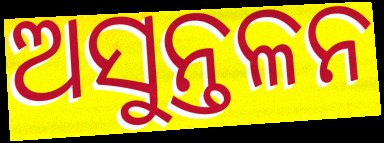
ଅସୁନ୍ତଳନ